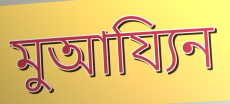
মুআয্যিন